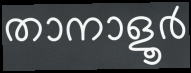
താനാളൂർ